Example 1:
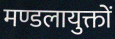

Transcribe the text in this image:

मण्डलायुक्तों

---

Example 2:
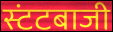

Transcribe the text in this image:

स्टंटबाजी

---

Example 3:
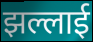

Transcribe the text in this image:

झल्लाई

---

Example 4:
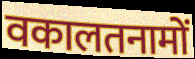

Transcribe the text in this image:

वकालतनामों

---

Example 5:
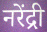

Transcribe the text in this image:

नरेंद्री